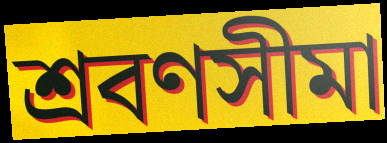
শ্রবণসীমা